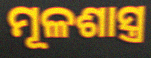
ମୂଳଶାସ୍ତ୍ର